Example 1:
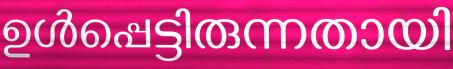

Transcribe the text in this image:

ഉൾപ്പെട്ടിരുന്നതായി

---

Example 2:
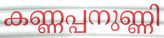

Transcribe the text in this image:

കണ്ണപ്പനുണ്ണി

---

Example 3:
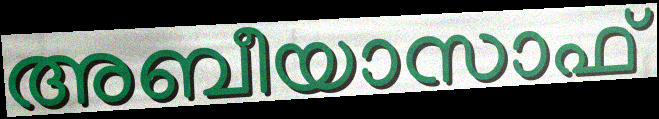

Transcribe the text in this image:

അബീയാസാഫ്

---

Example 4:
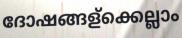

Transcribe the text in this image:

ദോഷങ്ങള്ക്കെല്ലാം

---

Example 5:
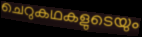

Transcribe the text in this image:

ചെറുകഥകളുടെയും